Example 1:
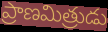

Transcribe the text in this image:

ప్రాణమిత్రుడు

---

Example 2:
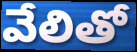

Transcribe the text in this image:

వేలితో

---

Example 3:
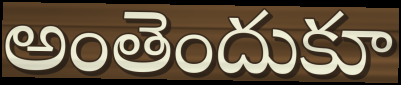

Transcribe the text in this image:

అంతెందుకూ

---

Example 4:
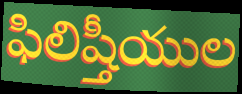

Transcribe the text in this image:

ఫిలిష్తీయుల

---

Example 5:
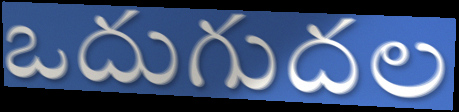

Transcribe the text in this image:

ఒదుగుదల